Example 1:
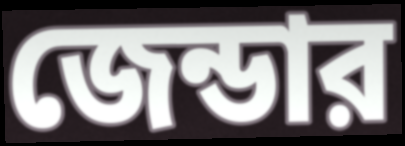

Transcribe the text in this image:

জেন্ডার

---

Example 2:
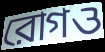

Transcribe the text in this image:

রোগও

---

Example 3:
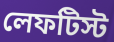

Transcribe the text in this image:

লেফটিস্ট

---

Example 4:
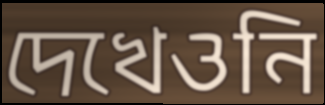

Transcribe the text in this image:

দেখেওনি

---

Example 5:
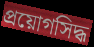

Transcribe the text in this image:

প্রয়োগসিদ্ধ